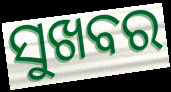
ସୁଖବର